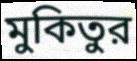
মুকিতুর